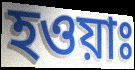
হওয়াঃ